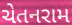
ચેતનરામ